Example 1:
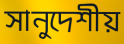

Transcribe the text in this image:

সানুদেশীয়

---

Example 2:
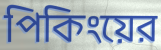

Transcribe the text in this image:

পিকিংয়ের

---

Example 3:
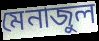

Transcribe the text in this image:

মেনাজুল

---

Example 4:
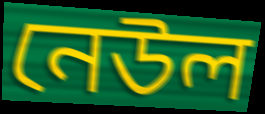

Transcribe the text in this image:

নেউল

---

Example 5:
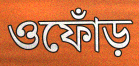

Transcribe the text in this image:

ওফোঁড়